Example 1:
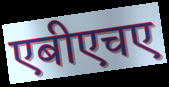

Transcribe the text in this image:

एबीएचए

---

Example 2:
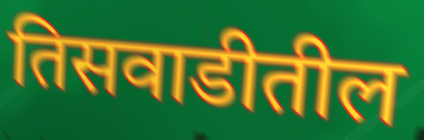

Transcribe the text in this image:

तिसवाडीतील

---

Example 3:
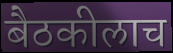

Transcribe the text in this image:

बैठकीलाच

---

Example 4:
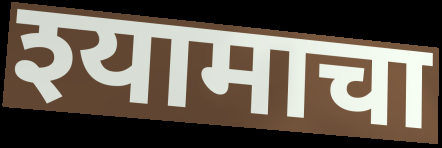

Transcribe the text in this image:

श्यामाचा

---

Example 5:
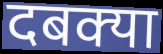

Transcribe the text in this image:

दबक्या